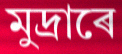
মুদ্ৰাৰে